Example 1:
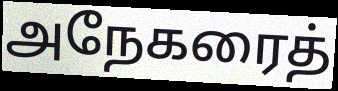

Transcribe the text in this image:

அநேகரைத்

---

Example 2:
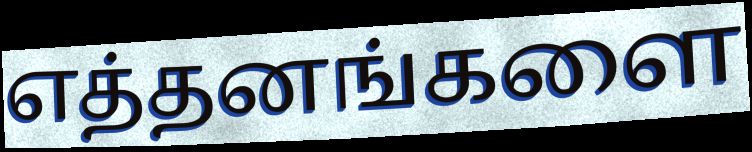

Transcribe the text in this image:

எத்தனங்களை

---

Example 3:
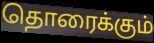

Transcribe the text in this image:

தொரைக்கும்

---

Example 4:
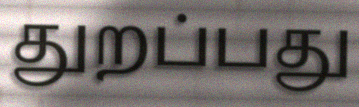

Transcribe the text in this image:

துறப்பது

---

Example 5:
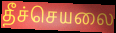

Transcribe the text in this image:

தீச்செயலை